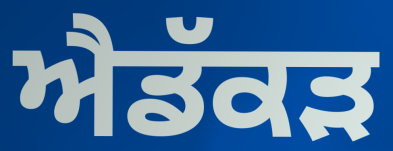
ਐਡੱਕੜ